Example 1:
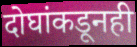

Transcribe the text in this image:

दोघांकडूनही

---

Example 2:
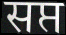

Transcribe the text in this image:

सप्त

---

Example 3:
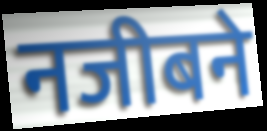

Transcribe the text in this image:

नजीबने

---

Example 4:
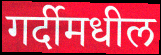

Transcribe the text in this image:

गर्दीमधील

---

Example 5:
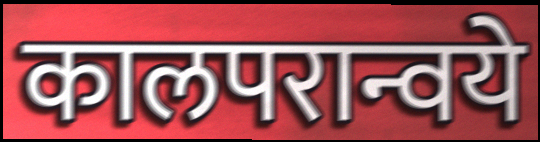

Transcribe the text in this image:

कालपरान्वये